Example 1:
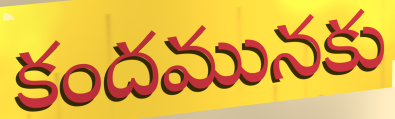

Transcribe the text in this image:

కందమునకు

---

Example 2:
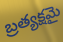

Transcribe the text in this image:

బ్రత్యక్షమై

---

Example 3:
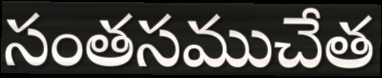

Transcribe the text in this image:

సంతసముచేత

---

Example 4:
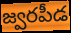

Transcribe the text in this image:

జ్వరపీడ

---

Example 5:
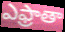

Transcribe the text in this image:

ఎఫ్రాతా